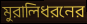
মুরালিধরনের